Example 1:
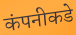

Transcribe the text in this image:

कंपनीकडे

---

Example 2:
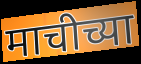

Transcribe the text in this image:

माचीच्या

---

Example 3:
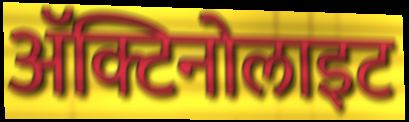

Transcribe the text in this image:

ॲक्टिनोलाइट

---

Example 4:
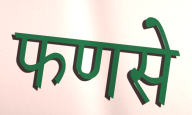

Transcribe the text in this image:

फणसे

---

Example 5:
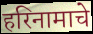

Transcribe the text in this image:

हरिनामाचे